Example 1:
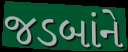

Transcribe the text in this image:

જડબાંને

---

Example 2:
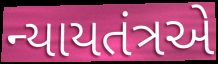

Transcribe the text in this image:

ન્યાયતંત્રએ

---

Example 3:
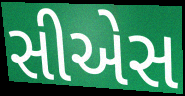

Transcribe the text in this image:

સીએસ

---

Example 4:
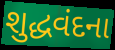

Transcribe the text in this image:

શુદ્ધવંદના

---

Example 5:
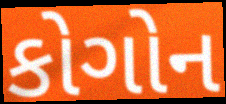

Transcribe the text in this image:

કોગોન